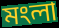
মংলা